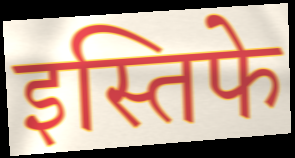
इस्तिफे